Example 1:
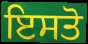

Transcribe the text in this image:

ਇਸਤੋ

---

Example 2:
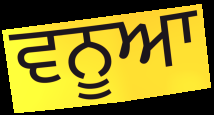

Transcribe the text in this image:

ਵਨੂਆ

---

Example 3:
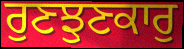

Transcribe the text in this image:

ਰੁਣਝੁਣਕਾਰੁ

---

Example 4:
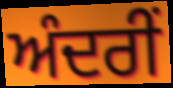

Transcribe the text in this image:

ਅੰਦਰੀਂ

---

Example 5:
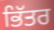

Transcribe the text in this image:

ਭਿੱਤਰ